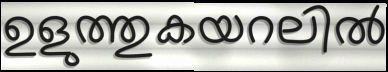
ഉളുത്തുകയറലിൽ